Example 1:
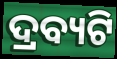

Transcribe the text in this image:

ଦ୍ରବ୍ୟଟି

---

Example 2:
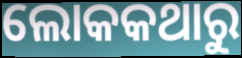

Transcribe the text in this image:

ଲୋକକଥାରୁ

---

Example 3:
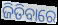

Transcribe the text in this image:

ଜିତିବାରେ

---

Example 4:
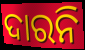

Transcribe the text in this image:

ଦାରନି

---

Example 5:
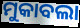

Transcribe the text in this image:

ମୁକାବଲା